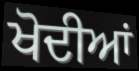
ਖੋਦੀਆਂ